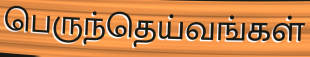
பெருந்தெய்வங்கள்